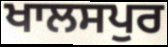
ਖਾਲਸਪੁਰ